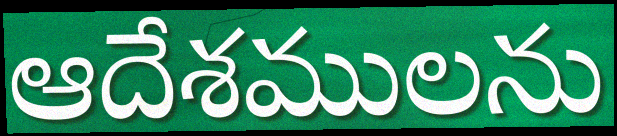
ఆదేశములను